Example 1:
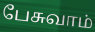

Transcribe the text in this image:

பேசுவாம்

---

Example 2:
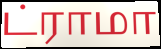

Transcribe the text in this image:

ட்ராமா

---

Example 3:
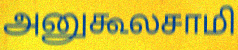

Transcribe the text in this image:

அனுகூலசாமி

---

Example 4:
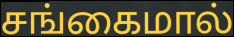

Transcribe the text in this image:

சங்கைமால்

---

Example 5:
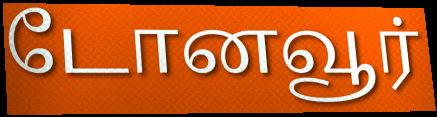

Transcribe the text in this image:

டோனவூர்